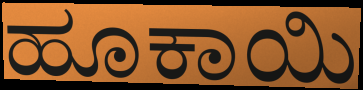
ಹೂಕಾಯಿ